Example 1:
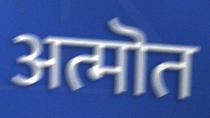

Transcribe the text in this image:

अत्मॊत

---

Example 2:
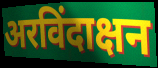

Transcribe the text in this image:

अरविंदाक्षन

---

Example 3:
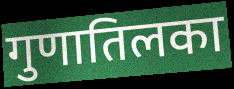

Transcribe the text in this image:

गुणातिलका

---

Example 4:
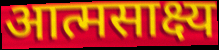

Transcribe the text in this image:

आत्मसाक्ष्य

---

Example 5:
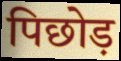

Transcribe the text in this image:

पिछोड़